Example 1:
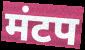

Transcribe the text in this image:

मंटप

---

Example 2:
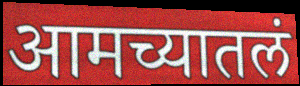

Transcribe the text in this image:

आमच्यातलं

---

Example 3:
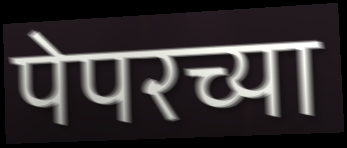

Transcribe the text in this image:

पेपरच्या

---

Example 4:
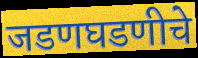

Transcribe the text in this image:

जडणघडणीचे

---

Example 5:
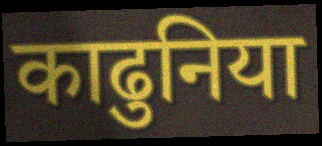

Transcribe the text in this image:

काढुनिया